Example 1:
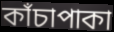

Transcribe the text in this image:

কাঁচাপাকা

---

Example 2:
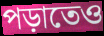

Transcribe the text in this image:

পড়াতেও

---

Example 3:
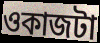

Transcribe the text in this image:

ওকাজটা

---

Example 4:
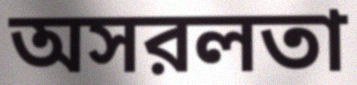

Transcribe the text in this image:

অসরলতা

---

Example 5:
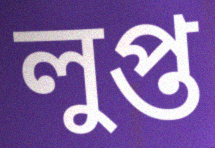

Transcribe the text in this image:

লুপ্ত